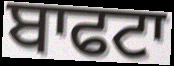
ਬਾਫਟਾ